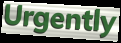
Urgently